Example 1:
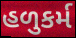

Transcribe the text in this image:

હળુકર્મ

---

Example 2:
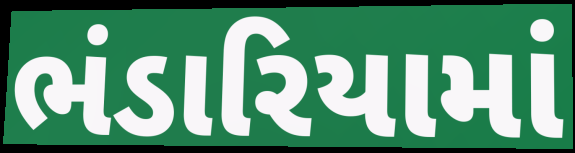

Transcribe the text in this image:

ભંડારિયામાં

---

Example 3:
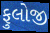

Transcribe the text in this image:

ફુલોજી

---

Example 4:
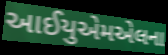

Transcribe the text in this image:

આઈયુએમએલના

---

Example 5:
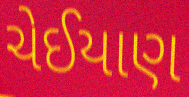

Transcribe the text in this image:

ચેઈયાણ